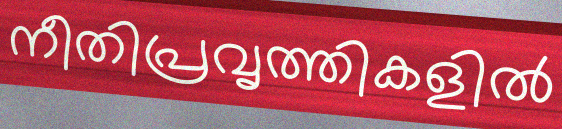
നീതിപ്രവൃത്തികളിൽ